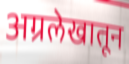
अग्रलेखातून